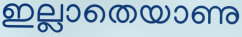
ഇല്ലാതെയാണു